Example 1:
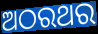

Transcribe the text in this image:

ଅଠରଥର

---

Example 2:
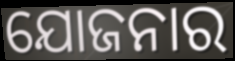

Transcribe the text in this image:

ଯୋଜନାର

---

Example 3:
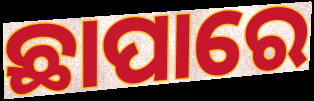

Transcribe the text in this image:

ଛାପାରେ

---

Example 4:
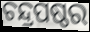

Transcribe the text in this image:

ଚନ୍ଦ୍ରପଷ୍ଠର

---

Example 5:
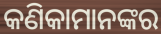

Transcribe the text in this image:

କଣିକାମାନଙ୍କର